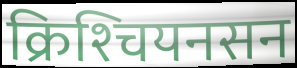
क्रिश्चियनसन